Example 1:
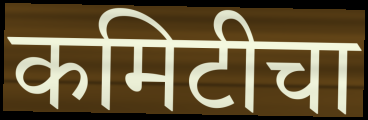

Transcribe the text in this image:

कमिटीचा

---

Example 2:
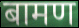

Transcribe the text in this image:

बामण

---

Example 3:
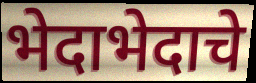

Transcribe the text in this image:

भेदाभेदाचे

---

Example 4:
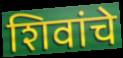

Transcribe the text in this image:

शिवांचे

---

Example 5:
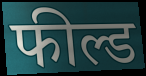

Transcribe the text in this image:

फील्ड